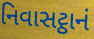
નિવાસટ્ઠાનં